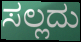
ಸಲ್ಲದು